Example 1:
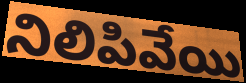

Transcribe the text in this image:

నిలిపివేయి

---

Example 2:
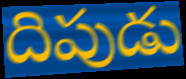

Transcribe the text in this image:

దిపుడు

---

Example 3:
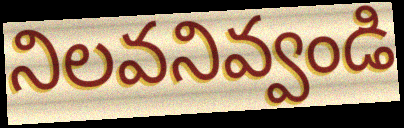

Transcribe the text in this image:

నిలవనివ్వండి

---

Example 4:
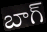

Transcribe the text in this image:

బాగ్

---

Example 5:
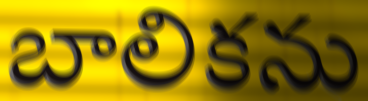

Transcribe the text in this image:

బాలికను